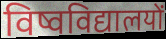
विष्वविद्यालयों